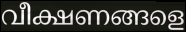
വീക്ഷണങ്ങളെ